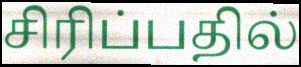
சிரிப்பதில்